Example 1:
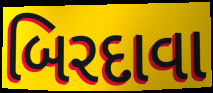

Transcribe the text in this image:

બિરદાવા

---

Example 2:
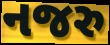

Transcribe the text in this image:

નજરુ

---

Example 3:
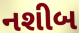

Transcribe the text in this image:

નશીબ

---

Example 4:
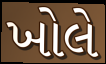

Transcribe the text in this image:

ખોલે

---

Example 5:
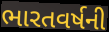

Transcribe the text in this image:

ભારતવર્ષની